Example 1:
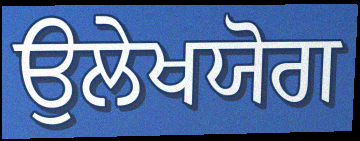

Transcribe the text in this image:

ਉਲੇਖਯੋਗ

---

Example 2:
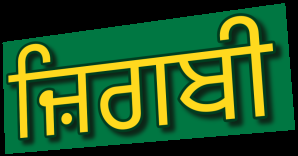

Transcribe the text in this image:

ਜ਼ਿਗਬੀ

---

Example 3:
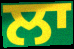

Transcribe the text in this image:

ਲਾ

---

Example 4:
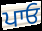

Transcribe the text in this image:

ਪਾਓ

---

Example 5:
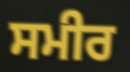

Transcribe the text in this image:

ਸਮੀਰ